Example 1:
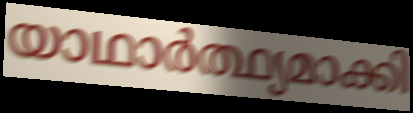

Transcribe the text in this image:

യാഥാർത്ഥ്യമാക്കി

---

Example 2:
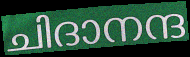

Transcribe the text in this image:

ചിദാനന്ദ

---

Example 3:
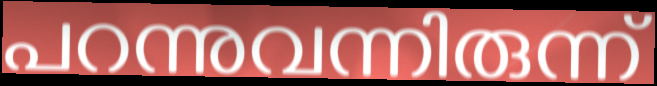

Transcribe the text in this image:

പറന്നുവന്നിരുന്ന്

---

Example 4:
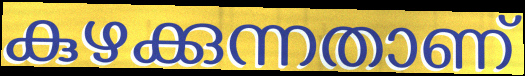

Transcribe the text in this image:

കുഴക്കുന്നതാണ്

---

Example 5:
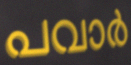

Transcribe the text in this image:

പവാർ